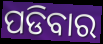
ପଡିବାର